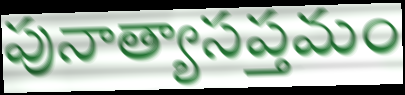
పునాత్యాసప్తమం